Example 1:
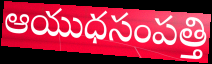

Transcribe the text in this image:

ఆయుధసంపత్తి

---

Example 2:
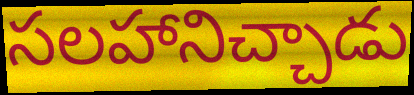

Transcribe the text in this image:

సలహానిచ్చాడు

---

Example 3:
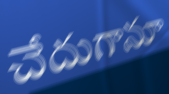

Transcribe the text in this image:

చేదుగానూ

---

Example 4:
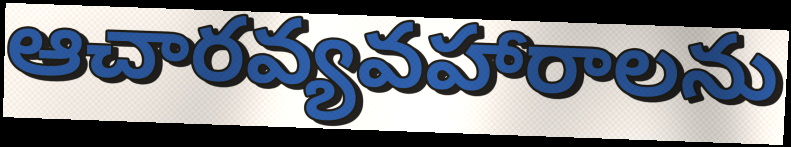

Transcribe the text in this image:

ఆచారవ్యవహారాలను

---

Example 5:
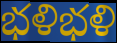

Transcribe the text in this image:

భళిభళి